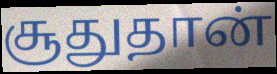
சூதுதான்